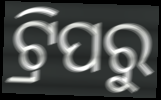
ଟ୍ରିପରୁ